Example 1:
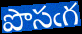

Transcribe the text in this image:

పొసఁగ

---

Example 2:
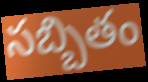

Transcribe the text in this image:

సబ్బితం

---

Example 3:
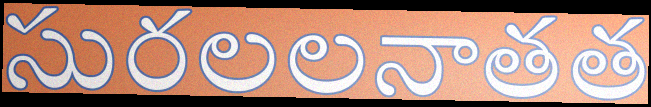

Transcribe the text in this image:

సురలలనాతత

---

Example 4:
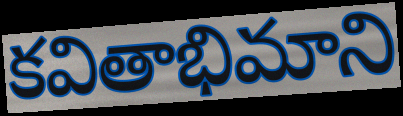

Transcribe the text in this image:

కవితాభిమాని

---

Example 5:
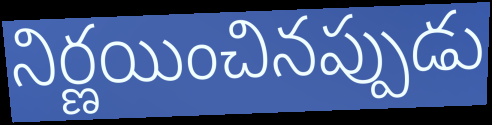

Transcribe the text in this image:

నిర్ణయించినప్పుడు